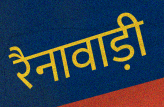
रैनावाड़ी